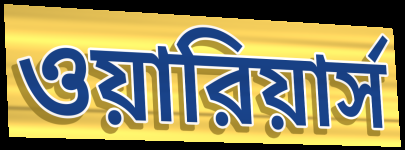
ওয়ারিয়ার্স